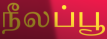
நீலப்பூ